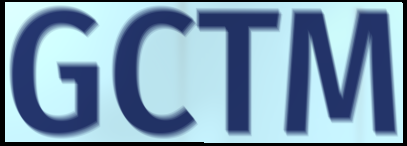
GCTM